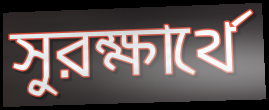
সুরক্ষার্থে